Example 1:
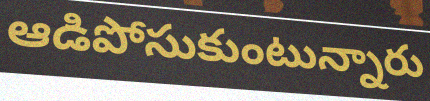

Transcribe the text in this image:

ఆడిపోసుకుంటున్నారు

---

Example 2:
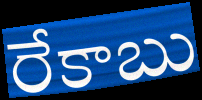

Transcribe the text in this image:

రేకాబు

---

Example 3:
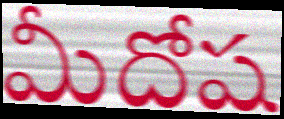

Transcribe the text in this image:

మీదోష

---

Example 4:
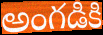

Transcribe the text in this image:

అంగడికి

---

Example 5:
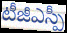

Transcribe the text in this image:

టీజీఎస్పీ